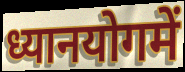
ध्यानयोगमें